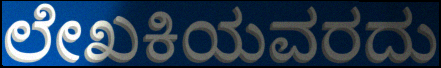
ಲೇಖಕಿಯವರದು